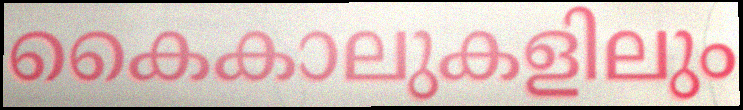
കൈകാലുകളിലും